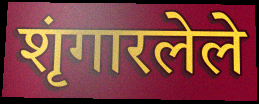
शृंगारलेले